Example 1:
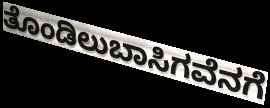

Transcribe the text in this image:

ತೊಂಡಿಲುಬಾಸಿಗವೆನಗೆ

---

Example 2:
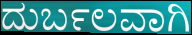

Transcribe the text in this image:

ದುರ್ಬಲವಾಗಿ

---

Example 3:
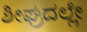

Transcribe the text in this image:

ಶೀಘ್ರದಲ್ಲೇ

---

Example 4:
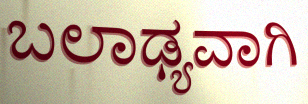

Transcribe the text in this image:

ಬಲಾಢ್ಯವಾಗಿ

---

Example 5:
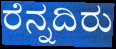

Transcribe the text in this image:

ರೆನ್ನದಿರು